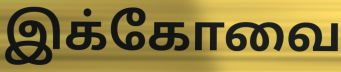
இக்கோவை